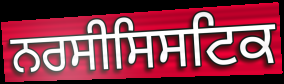
ਨਰਸੀਸਿਸਟਿਕ